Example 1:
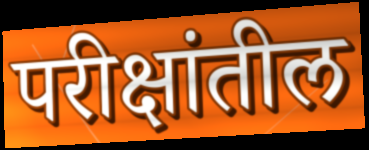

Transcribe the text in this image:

परीक्षांतील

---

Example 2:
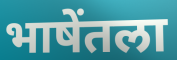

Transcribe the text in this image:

भाषेंतला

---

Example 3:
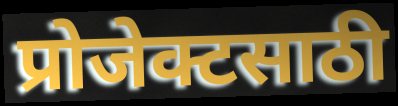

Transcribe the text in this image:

प्रोजेक्टसाठी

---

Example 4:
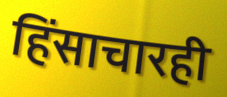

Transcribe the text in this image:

हिंसाचारही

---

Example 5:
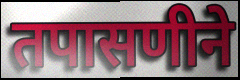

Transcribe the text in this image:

तपासणीने